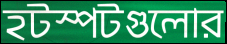
হটস্পটগুলোর